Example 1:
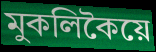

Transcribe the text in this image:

মুকলিকৈয়ে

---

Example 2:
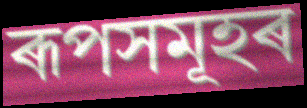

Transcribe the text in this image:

ৰূপসমূহৰ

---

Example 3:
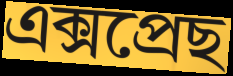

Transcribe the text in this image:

এক্সপ্ৰেছ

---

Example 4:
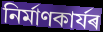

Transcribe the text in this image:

নিৰ্মাণকাৰ্যৰ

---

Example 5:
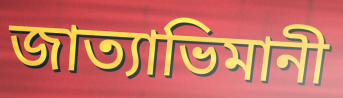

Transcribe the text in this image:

জাত্যাভিমানী